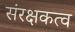
संरक्षकत्व